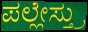
ಪಲ್ಲೇಸ್ತ್ರು